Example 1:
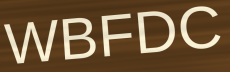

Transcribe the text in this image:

WBFDC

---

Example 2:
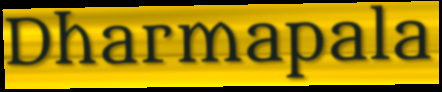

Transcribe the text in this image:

Dharmapala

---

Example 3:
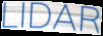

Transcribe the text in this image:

LIDAR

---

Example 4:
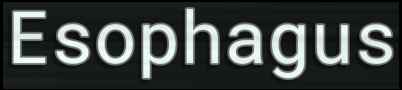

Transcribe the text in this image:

Esophagus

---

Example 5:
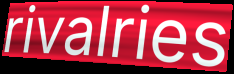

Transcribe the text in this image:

rivalries